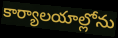
కార్యాలయాల్లోను